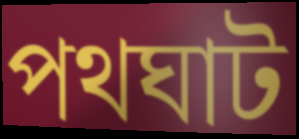
পথঘাট